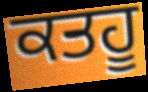
ਕਤਹੂ